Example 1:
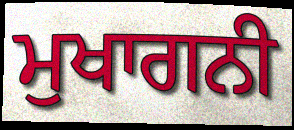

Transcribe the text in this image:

ਮੁਖਾਗਨੀ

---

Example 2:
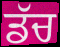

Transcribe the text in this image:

ਡੱਚ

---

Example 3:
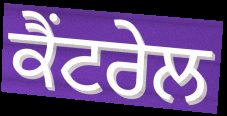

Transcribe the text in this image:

ਕੈਂਟਰੇਲ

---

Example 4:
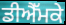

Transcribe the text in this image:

ਡੀਐੱਮਕੇ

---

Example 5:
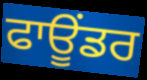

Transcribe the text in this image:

ਫਾਊਂਡਰ